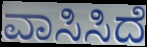
ವಾಸಿಸಿದೆ